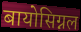
बायोसिग्नल